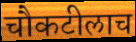
चौकटीलाच